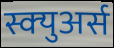
स्क्युअर्स